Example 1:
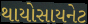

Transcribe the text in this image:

થાયોસાયનેટ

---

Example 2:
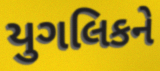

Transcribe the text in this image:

યુગલિકને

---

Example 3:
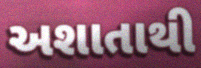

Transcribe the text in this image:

અશાતાથી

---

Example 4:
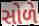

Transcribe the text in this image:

સોળે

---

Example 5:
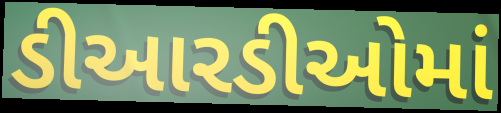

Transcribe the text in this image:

ડીઆરડીઓમાં